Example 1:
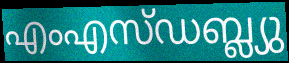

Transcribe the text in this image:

എംഎസ്ഡബ്ല്യു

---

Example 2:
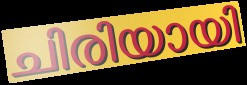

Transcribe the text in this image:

ചിരിയായി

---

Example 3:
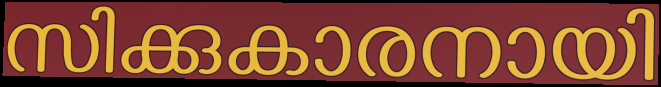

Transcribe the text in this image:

സിക്കുകാരനായി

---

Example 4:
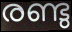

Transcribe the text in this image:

രണ്ടു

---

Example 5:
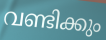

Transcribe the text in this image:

വണ്ടിക്കും